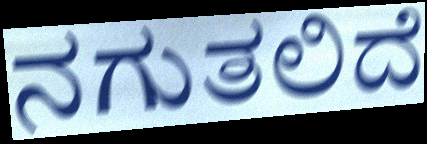
ನಗುತಲಿದೆ